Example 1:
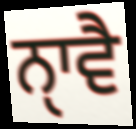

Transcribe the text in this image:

ਨੑਾਵੈ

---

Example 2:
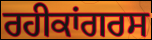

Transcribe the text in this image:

ਰਹੀਕਾਂਗਰਸ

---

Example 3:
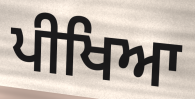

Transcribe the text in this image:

ਪੀਖਿਆ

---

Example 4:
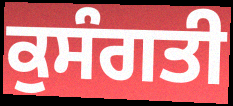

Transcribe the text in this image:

ਕੁਸੰਗਤੀ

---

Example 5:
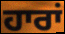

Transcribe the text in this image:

ਹਾਰਾਂ